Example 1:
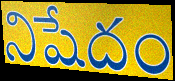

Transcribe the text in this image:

నిషేదం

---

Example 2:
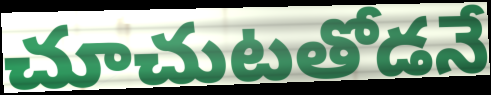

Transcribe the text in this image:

చూచుటతోడనే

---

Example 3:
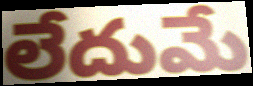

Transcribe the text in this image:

లేదుమే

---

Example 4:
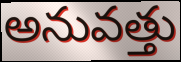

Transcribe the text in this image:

అనువత్తు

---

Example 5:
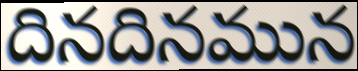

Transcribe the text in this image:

దినదినమున